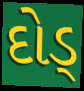
દોડ્